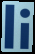
li